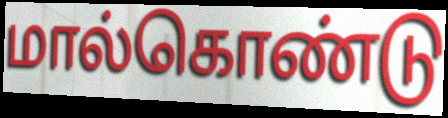
மால்கொண்டு